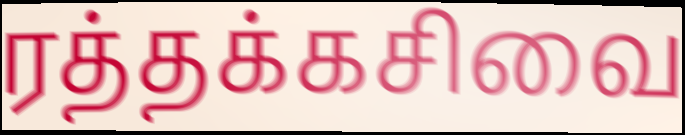
ரத்தக்கசிவை